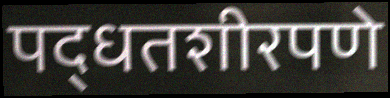
पद्धतशीरपणे